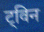
ट्विन